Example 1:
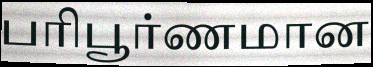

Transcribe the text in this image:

பரிபூர்ணமான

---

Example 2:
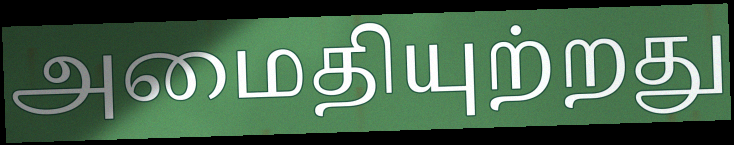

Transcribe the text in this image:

அமைதியுற்றது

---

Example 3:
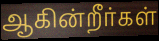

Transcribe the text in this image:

ஆகின்றீர்கள்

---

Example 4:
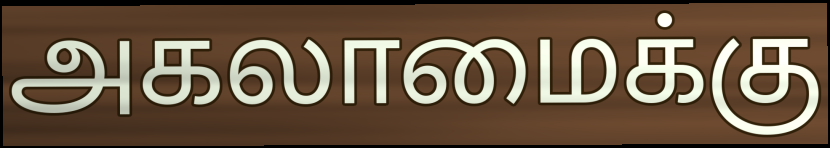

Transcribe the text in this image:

அகலாமைக்கு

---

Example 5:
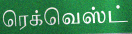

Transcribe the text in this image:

ரெக்வெஸ்ட்